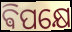
ଵିପକ୍ଷେ